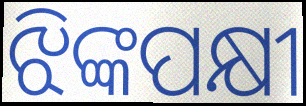
ଝିଙ୍କପକ୍ଷୀ